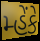
મ્હેંકે